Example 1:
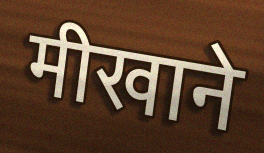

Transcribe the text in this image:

मीखाने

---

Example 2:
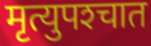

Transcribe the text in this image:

मृत्युपश्‍चात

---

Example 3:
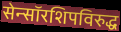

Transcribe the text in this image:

सेन्सॉरशिपविरुद्ध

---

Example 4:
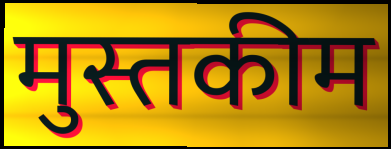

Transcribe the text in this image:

मुस्तकीम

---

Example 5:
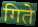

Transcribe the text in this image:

गिते